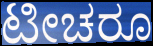
ಟೀಚರೂ